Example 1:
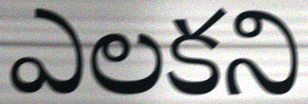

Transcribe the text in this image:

ఎలకని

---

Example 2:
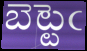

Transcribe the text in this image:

బెట్టెఁ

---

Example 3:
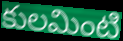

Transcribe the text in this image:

కులమింటి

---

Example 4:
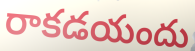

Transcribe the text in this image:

రాకడయందు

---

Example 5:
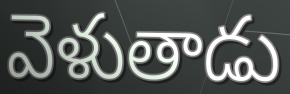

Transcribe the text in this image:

వెళుతాడు